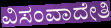
ವಿಸಂವಾದೇತಿ